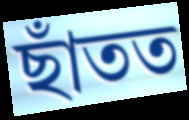
ছাঁতত